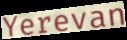
Yerevan